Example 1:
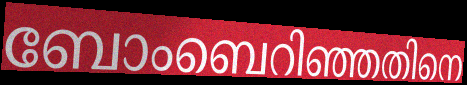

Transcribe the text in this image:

ബോംബെറിഞ്ഞതിനെ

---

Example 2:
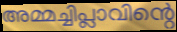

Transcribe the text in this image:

അമ്മച്ചിപ്ലാവിന്റെ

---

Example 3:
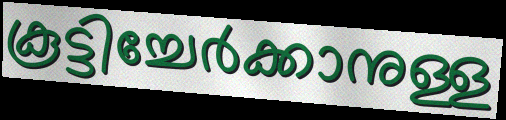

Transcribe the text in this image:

കൂട്ടിച്ചേർക്കാനുള്ള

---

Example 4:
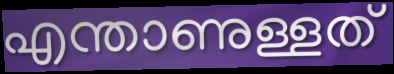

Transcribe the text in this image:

എന്താണുള്ളത്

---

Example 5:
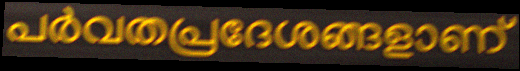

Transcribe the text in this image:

പർവതപ്രദേശങ്ങളാണ്